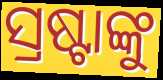
ସ୍ରଷ୍ଟାଙ୍କୁ